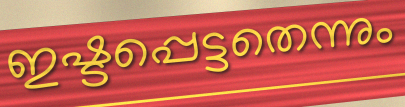
ഇഷ്ടപ്പെട്ടതെന്നും